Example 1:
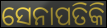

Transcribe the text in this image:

ସେନାପତିକି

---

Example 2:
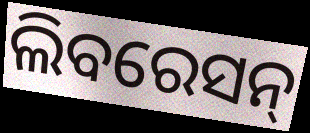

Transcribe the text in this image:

ଲିବରେସନ୍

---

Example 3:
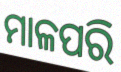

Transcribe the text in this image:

ମାଳପରି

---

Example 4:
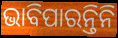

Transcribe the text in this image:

ଭାବିପାରନ୍ତିନି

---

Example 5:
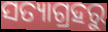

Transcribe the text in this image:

ସତ୍ୟାଗ୍ରହରୁ